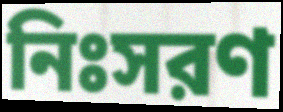
নিঃসরণ